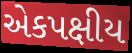
એકપક્ષીય